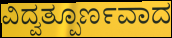
ವಿದ್ವತ್ಪೂರ್ಣವಾದ